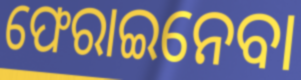
ଫେରାଇନେବା